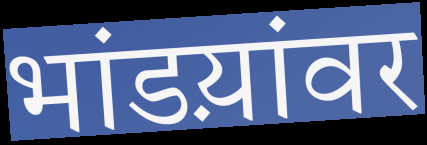
भांडय़ांवर